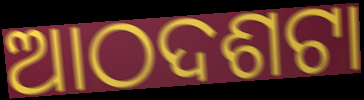
ଆଠଦଶଟା